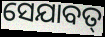
ସେଯାବତ୍